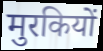
मुरकियों